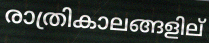
രാത്രികാലങ്ങളില്